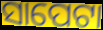
ସାପେଟା